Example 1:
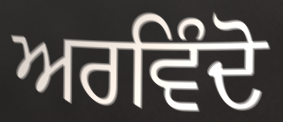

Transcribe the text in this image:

ਅਰਵਿੰਦੋ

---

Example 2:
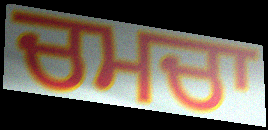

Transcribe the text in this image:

ਚਮਚਾ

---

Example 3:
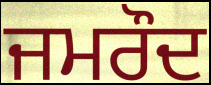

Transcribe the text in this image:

ਜਮਰੌਦ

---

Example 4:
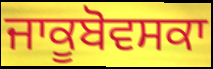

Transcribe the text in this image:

ਜਾਕੂਬੋਵਸਕਾ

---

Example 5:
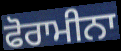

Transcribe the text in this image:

ਫੋਰਾਮੀਨਾ